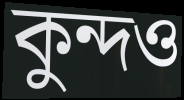
কুন্দও